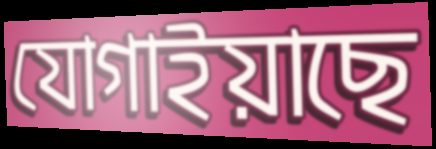
যোগাইয়াছে